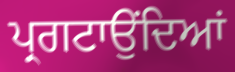
ਪ੍ਰਗਟਾਉਂਦਿਆਂ